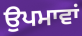
ਉਪਮਾਵਾਂ